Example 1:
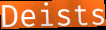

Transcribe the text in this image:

Deists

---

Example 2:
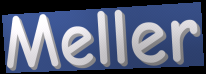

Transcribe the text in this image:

Meller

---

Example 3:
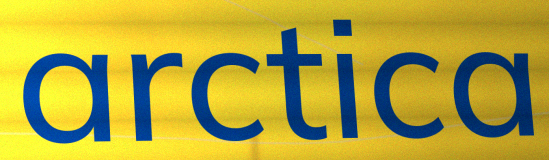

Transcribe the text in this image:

arctica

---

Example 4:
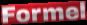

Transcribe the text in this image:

Formel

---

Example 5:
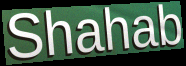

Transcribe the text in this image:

Shahab